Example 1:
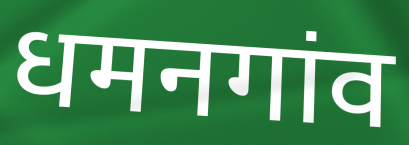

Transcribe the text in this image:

धमनगांव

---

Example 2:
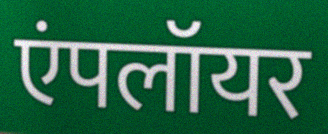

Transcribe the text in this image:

एंपलॉयर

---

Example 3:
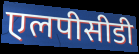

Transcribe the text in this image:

एलपीसीडी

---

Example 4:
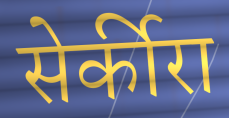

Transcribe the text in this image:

सेर्कीरा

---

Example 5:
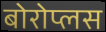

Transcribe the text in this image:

बोरोप्लस